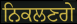
ਨਿਕਲਣਗੇ